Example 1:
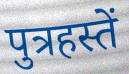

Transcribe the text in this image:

पुत्रहस्तें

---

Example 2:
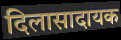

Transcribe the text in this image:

दिलासादायक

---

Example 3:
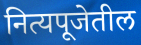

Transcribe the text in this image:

नित्यपूजेतील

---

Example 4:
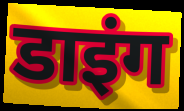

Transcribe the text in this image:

डाइंग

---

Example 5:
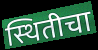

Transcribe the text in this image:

स्थितीचा